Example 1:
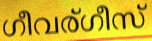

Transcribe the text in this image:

ഗീവര്ഗീസ്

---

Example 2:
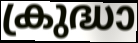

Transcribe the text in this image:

ക്രുദ്ധാ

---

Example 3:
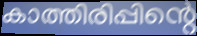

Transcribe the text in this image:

കാത്തിരിപ്പിന്റെ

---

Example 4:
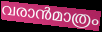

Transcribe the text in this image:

വരാൻമാത്രം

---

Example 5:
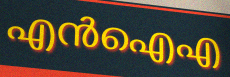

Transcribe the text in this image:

എൻഐഎ